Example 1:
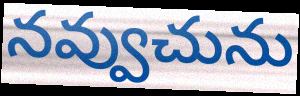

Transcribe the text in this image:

నవ్వుచును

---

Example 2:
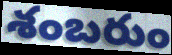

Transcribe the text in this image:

శంబరుం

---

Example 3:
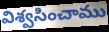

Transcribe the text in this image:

విశ్వసించాము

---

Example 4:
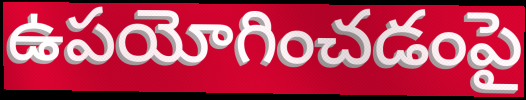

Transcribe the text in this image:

ఉపయోగించడంపై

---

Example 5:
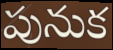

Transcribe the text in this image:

పునుక